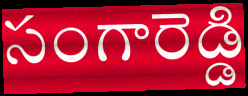
సంగారెడ్డి